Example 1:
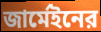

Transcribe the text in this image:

জার্মেইনের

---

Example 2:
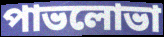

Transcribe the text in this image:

পাভলোভা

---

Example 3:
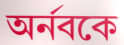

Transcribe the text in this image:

অর্নবকে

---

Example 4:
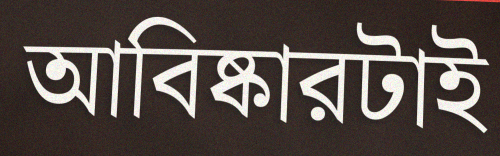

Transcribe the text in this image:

আবিষ্কারটাই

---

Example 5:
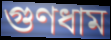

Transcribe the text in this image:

গুণধাম